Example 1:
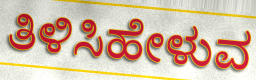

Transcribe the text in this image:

ತಿಳಿಸಿಹೇಳುವ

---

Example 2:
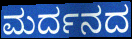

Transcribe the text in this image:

ಮರ್ದನದ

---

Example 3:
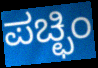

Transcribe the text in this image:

ಪಚ್ಛಿಂ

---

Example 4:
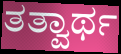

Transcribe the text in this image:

ತತ್ವಾರ್ಥ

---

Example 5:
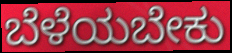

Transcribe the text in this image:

ಬೆಳೆಯಬೇಕು